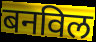
बनविल